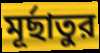
মূর্ছাতুর